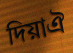
দিয়াঐ